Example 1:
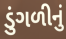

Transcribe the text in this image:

ડુંગળીનું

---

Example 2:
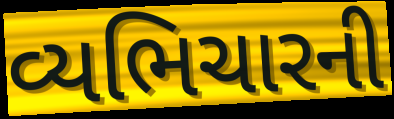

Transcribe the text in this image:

વ્યભિચારની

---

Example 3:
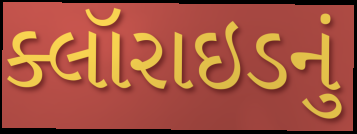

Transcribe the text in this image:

ક્લૉરાઇડનું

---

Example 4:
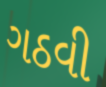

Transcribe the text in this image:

ગઠવી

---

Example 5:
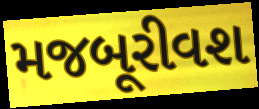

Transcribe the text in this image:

મજબૂરીવશ